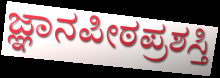
ಜ್ಞಾನಪೀಠಪ್ರಶಸ್ತಿ